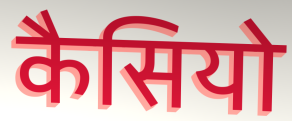
कैसियो